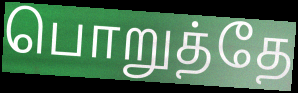
பொறுத்தே